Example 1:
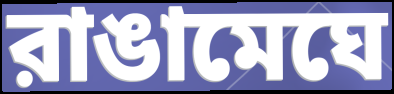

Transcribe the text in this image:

রাঙামেঘে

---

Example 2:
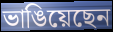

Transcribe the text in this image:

ভাঙিয়েছেন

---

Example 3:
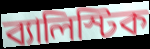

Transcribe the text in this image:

ব্যালিস্টিক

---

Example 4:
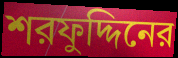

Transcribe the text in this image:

শরফুদ্দিনের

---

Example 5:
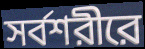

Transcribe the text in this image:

সর্বশরীরে